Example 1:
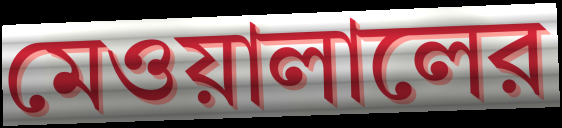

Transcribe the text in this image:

মেওয়ালালের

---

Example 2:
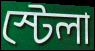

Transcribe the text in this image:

স্টেলা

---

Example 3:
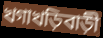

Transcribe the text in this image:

খগাখড়িবাড়ী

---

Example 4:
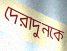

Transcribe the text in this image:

দেরাদুনকে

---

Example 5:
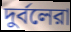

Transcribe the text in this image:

দুর্বলেরা